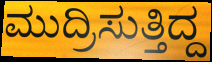
ಮುದ್ರಿಸುತ್ತಿದ್ದ